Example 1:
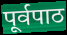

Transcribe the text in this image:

पूर्वपाठ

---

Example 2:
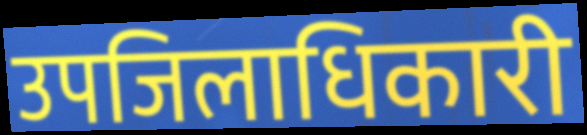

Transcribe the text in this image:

उपजिलाधिकारी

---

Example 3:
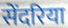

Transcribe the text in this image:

सेंदरिया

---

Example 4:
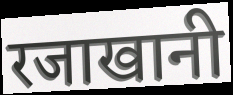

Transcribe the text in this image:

रजाखानी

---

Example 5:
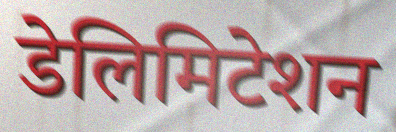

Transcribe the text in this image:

डेलिमिटेशन